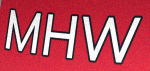
MHW